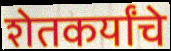
शेतकर्यांचे